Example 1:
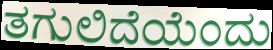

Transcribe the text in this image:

ತಗುಲಿದೆಯೆಂದು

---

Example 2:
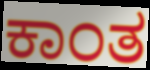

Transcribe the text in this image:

ಕಾಂತ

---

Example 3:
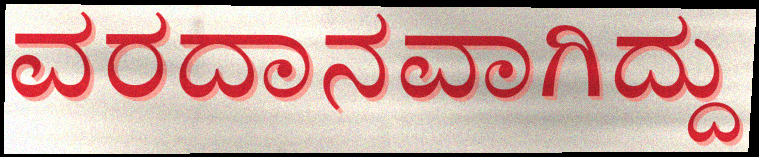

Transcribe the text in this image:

ವರದಾನವಾಗಿದ್ದು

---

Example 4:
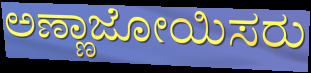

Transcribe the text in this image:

ಅಣ್ಣಾಜೋಯಿಸರು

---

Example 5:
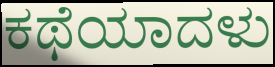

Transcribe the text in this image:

ಕಥೆಯಾದಳು